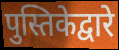
पुस्तिकेद्वारे